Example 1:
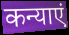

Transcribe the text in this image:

कन्याएं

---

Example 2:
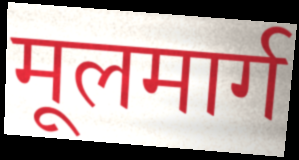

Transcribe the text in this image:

मूलमार्ग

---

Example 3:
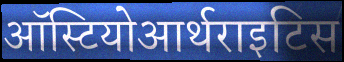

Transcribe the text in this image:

ऑस्टियोआर्थराइटिस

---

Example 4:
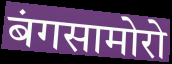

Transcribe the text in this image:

बंगसामोरो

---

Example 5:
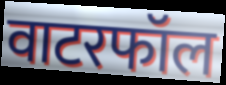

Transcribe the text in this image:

वाटरफॉल